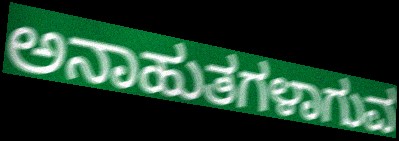
ಅನಾಹುತಗಳಾಗುವ